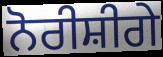
ਨੋਰੀਸ਼ੀਗੇ